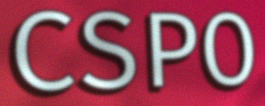
CSPO